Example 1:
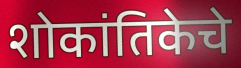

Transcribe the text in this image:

शोकांतिकेचे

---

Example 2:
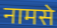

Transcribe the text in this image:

नामसे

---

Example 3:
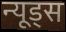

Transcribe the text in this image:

न्यूड्स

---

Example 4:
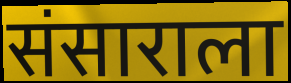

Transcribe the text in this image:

संसाराला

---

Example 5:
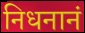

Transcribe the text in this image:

निधनानं